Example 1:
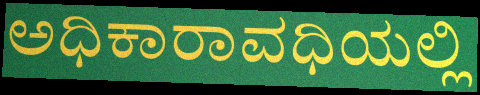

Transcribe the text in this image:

ಅಧಿಕಾರಾವಧಿಯಲ್ಲಿ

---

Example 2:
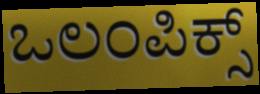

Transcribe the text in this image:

ಒಲಂಪಿಕ್ಸ್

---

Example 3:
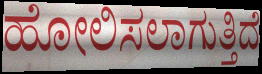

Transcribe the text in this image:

ಹೋಲಿಸಲಾಗುತ್ತಿದೆ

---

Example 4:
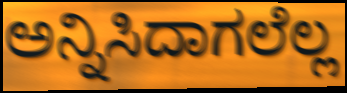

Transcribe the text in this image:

ಅನ್ನಿಸಿದಾಗಲೆಲ್ಲ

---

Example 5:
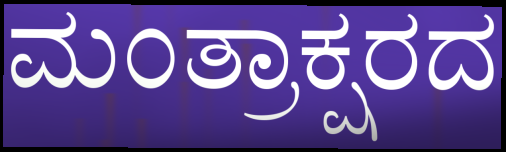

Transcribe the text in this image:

ಮಂತ್ರಾಕ್ಷರದ